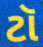
ટૉ